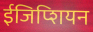
ईजिप्शियन